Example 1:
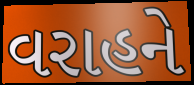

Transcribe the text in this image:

વરાહને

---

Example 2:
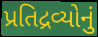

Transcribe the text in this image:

પ્રતિદ્રવ્યોનું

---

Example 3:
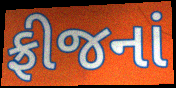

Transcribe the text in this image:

ફ્રીજનાં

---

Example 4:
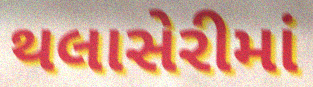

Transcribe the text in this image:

થલાસેરીમાં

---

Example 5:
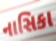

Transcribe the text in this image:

નાસિકા